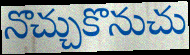
నొచ్చుకొనుచు